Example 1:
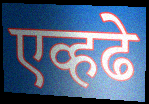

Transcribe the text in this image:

एव्हढे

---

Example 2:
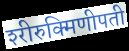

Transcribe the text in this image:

श्रीरुक्मिणीपती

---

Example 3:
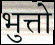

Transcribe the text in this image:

भुत्तो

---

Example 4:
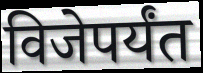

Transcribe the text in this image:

विजेपर्यंत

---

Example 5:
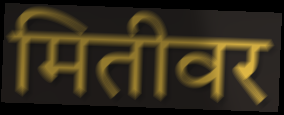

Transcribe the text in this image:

मितीवर